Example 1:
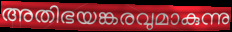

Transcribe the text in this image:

അതിഭയങ്കരവുമാകുന്നു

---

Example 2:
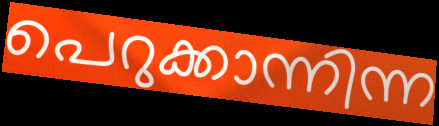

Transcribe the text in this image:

പെറുക്കാന്നിന്ന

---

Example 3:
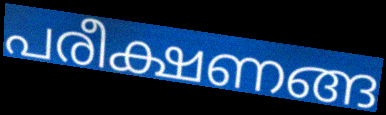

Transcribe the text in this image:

പരീക്ഷണങ്ങ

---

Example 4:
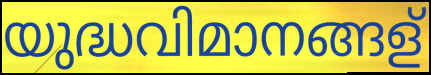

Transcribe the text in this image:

യുദ്ധവിമാനങ്ങള്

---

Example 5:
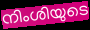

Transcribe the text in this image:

നിംശിയുടെ